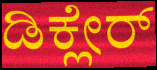
ಡಿಕ್ಲೇರ್